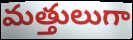
మత్తులుగా